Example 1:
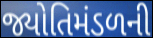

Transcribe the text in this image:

જ્યોતિમંડળની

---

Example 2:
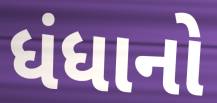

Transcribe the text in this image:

ધંધાનો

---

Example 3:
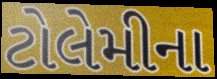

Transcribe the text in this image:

ટોલેમીના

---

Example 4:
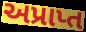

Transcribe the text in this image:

અપ્રાપ્ત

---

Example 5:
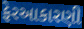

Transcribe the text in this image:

ફેરઆકારણી